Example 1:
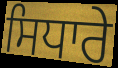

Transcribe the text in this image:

ਸਿਧਾਰੇ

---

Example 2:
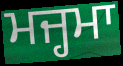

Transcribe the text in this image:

ਮਜ੍ਹਮਾ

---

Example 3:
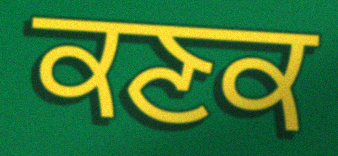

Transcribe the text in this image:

ਕਣਕ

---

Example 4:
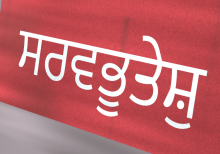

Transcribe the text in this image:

ਸਰਵਭੂਤੇਸ਼ੁ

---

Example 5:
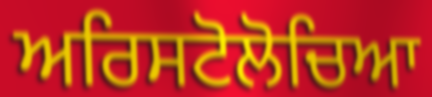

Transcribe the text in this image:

ਅਰਿਸਟੋਲੋਚਿਆ